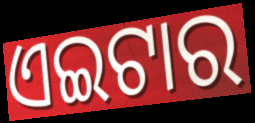
ଏଇଟାର